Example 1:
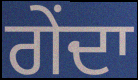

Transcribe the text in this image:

ਗੇਂਦਾ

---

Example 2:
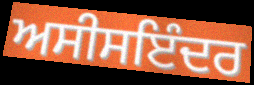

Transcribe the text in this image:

ਅਸੀਸਇੰਦਰ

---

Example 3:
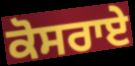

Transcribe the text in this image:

ਕੋਸਰਾਏ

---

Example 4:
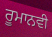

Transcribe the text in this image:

ਰੂਮਾਨਵੀ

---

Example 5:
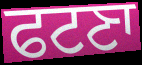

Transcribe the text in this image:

ਫਟਣਾ